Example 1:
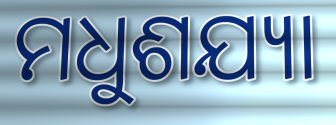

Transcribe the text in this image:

ମଧୁଶଯ୍ୟା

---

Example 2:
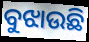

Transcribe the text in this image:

ବୁଝାଉଛି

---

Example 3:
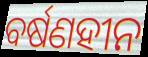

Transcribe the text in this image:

ବର୍ଷଣହୀନ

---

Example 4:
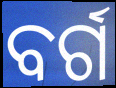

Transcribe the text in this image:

ବର୍ଗ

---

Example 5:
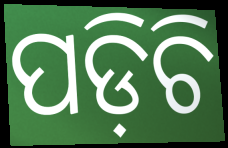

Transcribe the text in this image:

ପଡ଼ିଚି